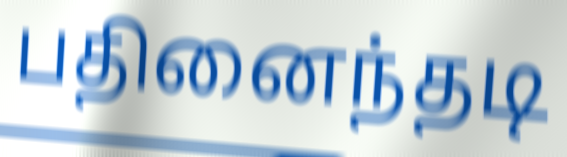
பதினைந்தடி